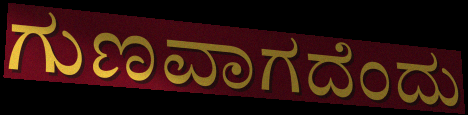
ಗುಣವಾಗದೆಂದು